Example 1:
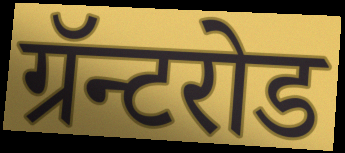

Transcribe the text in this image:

ग्रॅन्टरोड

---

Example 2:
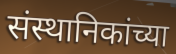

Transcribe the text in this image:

संस्थानिकांच्या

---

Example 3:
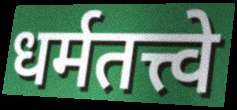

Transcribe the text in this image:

धर्मतत्त्वे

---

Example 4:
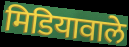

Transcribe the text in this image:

मिडियावाले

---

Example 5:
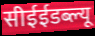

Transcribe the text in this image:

सीईईडब्ल्यू